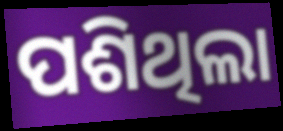
ପଶିଥିଲା